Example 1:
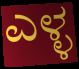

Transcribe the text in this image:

ಎಳ್ಳ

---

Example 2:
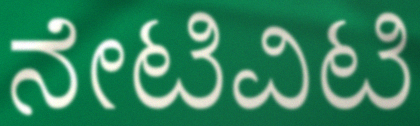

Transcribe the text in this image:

ನೇಟಿವಿಟಿ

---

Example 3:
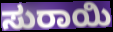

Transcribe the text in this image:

ಸುರಾಯಿ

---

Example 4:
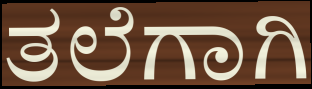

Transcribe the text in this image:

ತಲೆಗಾಗಿ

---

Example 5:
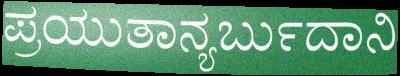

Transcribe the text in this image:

ಪ್ರಯುತಾನ್ಯರ್ಬುದಾನಿ